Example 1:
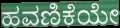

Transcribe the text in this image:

ಹವಣಿಕೆಯೇ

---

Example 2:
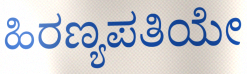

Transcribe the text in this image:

ಹಿರಣ್ಯಪತಿಯೇ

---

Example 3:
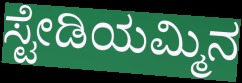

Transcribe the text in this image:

ಸ್ಟೇಡಿಯಮ್ಮಿನ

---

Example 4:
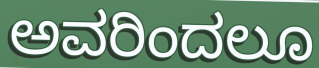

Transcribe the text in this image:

ಅವರಿಂದಲೂ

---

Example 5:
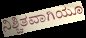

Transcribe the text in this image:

ನಿಶ್ಚಿತವಾಗಿಯೂ